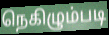
நெகிழும்படி